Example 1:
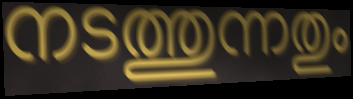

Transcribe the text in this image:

നടത്തുന്നതും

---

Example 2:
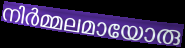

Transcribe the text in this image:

നിർമ്മലമായോരു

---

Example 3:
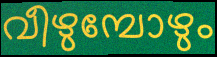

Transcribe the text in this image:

വീഴുമ്പോഴും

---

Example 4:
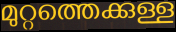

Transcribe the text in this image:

മുറ്റത്തെക്കുള്ള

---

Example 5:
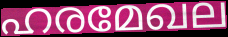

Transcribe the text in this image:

ഹരമേഖല